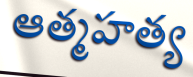
ఆత్మహత్య